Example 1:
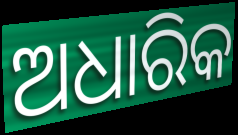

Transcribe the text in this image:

ଅଧାରିକ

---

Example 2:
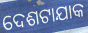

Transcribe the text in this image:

ଦେଶଟାଯାକ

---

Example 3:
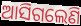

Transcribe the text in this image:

ଆସିଗଲେଣି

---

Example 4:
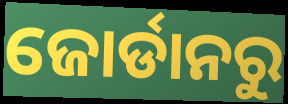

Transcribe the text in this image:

ଜୋର୍ଡାନରୁ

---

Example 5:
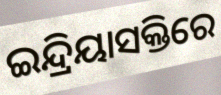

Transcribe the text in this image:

ଇନ୍ଦ୍ରିୟାସକ୍ତିରେ